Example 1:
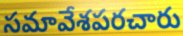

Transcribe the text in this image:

సమావేశపరచారు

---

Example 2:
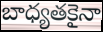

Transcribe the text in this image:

బాధ్యతకైనా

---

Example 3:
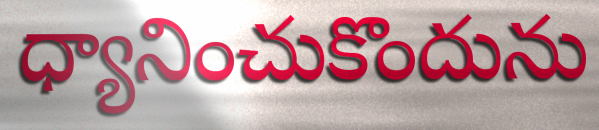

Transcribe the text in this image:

ధ్యానించుకొందును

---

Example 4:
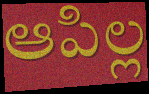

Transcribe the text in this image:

ఆపిల్ల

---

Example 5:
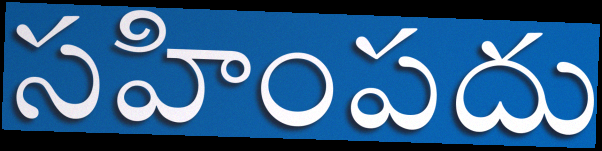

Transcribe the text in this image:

సహింపదు